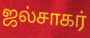
ஜல்சாகர்